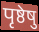
पृष्ठेषु